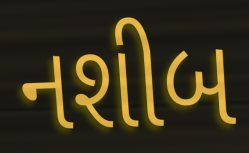
નશીબ